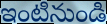
ఇంటినుండి